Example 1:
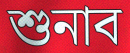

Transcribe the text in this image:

শুনাব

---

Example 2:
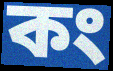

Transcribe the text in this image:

কং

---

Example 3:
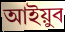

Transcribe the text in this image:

আইয়ুব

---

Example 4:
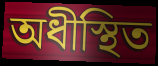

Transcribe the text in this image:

অধীস্থিত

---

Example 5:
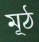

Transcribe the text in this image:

মূঠ